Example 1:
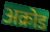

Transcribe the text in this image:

अक्रोड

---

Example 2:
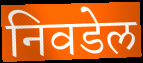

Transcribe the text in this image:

निवडेल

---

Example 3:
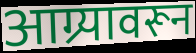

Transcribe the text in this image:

आग्र्यावरून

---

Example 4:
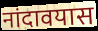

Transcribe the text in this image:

नांदावयास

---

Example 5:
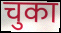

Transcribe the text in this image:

चुका